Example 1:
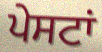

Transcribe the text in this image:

ਪੇਸਟਾਂ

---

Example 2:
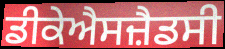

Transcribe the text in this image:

ਡੀਕੇਐਸਜ਼ੈਡਸੀ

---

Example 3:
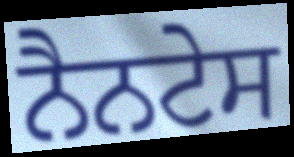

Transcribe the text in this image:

ਨੈਨਟੇਸ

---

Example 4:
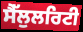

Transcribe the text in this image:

ਸੈੱਲੁਲਰਿਟੀ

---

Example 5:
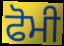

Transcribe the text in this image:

ਫੋਮੀ